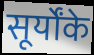
सूर्योंके